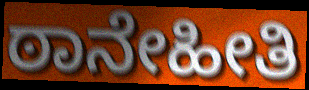
ಠಾನೇಹೀತಿ